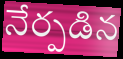
నేర్పడిన